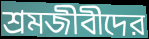
শ্রমজীবীদের